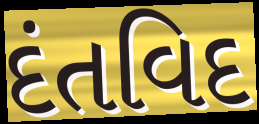
દંતવિદ